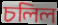
চলিল